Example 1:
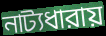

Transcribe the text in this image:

নাট্যধারায়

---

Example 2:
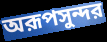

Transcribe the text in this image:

অরূপসুন্দর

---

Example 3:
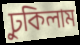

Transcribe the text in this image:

ঢুকিলাম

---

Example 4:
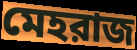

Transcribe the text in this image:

মেহরাজ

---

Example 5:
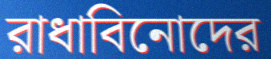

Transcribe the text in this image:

রাধাবিনোদের